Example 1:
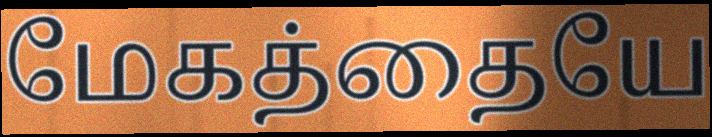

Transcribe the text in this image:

மேகத்தையே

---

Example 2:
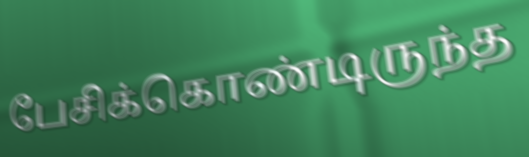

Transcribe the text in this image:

பேசிக்கொண்டிருந்த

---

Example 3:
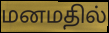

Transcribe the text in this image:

மனமதில்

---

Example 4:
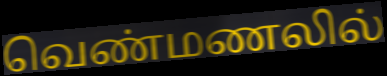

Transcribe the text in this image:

வெண்மணலில்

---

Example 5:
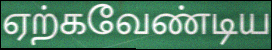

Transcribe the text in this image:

ஏற்கவேண்டிய